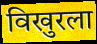
विखुरला